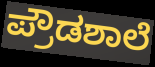
ಪ್ರೌಡಶಾಲೆ